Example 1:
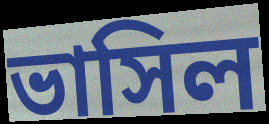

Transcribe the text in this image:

ভাসিল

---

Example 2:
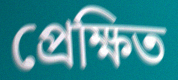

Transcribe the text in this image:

প্রেক্ষিত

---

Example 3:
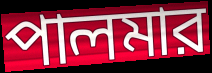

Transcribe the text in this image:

পালমার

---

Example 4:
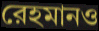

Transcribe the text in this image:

রেহমানও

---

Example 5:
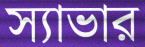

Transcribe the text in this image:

স্যাভার